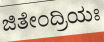
ಜಿತೇಂದ್ರಿಯಃ